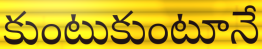
కుంటుకుంటూనే